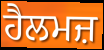
ਹੈਲਮਜ਼